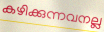
കഴിക്കുന്നവനല്ല